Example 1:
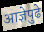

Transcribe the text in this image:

आज्ञेपुढे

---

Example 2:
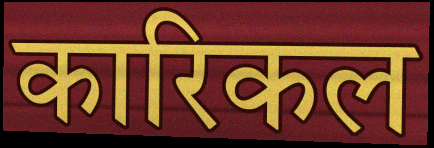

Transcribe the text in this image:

कारिकल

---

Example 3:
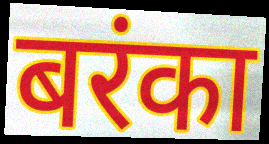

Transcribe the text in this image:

बरंका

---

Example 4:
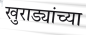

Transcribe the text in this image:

खुराड्यांच्या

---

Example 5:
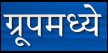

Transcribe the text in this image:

ग्रूपमध्ये